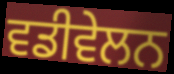
ਵਡੀਵੇਲਨ